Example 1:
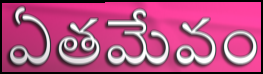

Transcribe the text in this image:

ఏతమేవం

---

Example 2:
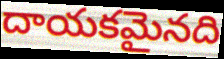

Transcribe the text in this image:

దాయకమైనది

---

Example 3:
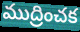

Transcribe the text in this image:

ముద్రించక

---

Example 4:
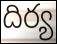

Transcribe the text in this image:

దిర్య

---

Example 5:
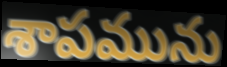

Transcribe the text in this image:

శాపమును